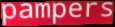
pampers